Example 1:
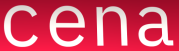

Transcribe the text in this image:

cena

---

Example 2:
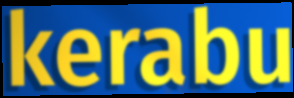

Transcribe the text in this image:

kerabu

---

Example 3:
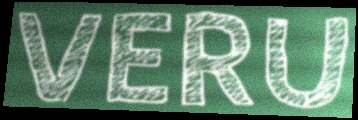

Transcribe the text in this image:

VERU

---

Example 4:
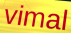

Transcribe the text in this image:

vimal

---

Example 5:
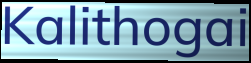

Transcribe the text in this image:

Kalithogai